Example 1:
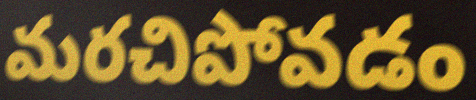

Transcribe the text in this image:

మరచిపోవడం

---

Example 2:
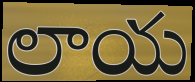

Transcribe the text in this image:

లాయ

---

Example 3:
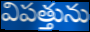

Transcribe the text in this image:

విపత్తును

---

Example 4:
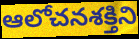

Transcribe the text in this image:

ఆలోచనశక్తిని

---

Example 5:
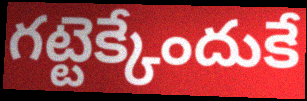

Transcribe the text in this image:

గట్టెక్కేందుకే